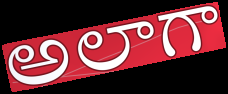
అలాగా